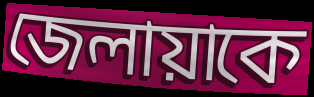
জেলায়াকে